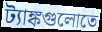
ট্যাঙ্কগুলোতে